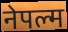
नेपल्म